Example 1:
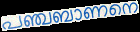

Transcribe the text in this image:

പഞ്ചബാണനെ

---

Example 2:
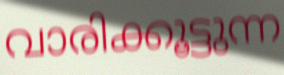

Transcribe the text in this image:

വാരിക്കൂട്ടുന്ന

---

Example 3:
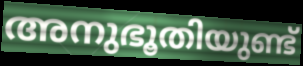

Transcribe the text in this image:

അനുഭൂതിയുണ്ട്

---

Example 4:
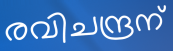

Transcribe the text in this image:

രവിചന്ദ്രന്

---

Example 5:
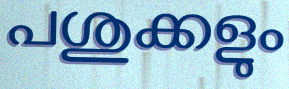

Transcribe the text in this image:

പശുക്കളും